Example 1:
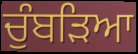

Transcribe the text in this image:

ਚੁੰਬੜਿਆ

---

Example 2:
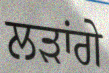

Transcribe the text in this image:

ਲੜਾਂਗੇ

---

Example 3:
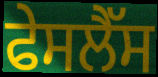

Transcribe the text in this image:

ਫੇਸਲੈੱਸ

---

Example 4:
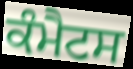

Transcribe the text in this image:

ਕੰਮੈਟਸ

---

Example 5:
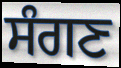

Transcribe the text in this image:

ਸੰਗਣ